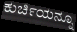
ಕುರ್ಚಿಯನ್ನೂ